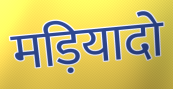
मड़ियादो